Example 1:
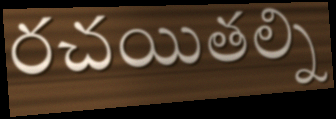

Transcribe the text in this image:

రచయితల్ని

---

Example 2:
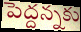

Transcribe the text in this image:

పెద్దన్నకు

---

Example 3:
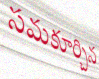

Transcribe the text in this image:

సమకూర్చిన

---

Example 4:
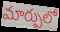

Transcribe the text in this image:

మార్పులో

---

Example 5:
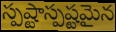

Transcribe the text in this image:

స్పష్టాస్పష్టమైన